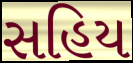
સહિય